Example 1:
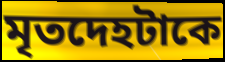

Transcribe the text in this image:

মৃতদেহটাকে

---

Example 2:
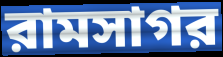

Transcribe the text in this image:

রামসাগর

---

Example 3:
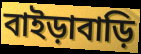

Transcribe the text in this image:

বাইড়াবাড়ি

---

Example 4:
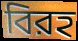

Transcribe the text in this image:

বিরহ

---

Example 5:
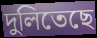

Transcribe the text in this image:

দুলিতেছে